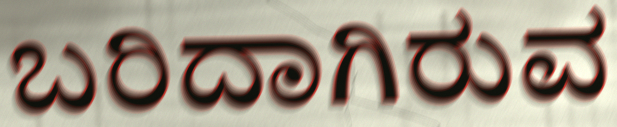
ಬರಿದಾಗಿರುವ